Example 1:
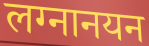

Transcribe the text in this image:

लग्नानयन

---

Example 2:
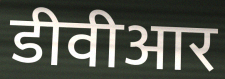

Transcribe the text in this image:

डीवीआर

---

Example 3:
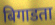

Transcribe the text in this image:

बिगाडता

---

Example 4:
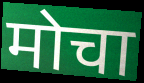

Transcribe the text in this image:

मोचा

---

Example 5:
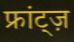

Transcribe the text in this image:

फ्रांट्ज़